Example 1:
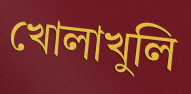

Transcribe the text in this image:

খোলাখুলি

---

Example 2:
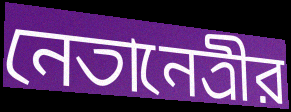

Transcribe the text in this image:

নেতানেত্রীর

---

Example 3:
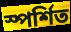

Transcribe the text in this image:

স্পর্শিত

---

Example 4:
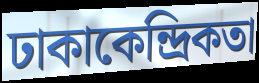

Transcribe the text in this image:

ঢাকাকেন্দ্রিকতা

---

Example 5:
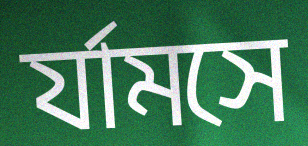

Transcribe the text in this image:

র্যামসে